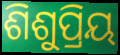
ଶିଶୁପ୍ରିୟ